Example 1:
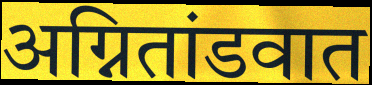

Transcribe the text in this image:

अग्नितांडवात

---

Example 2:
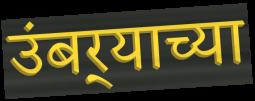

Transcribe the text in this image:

उंबर्याच्या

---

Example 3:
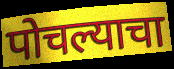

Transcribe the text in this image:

पोचल्याचा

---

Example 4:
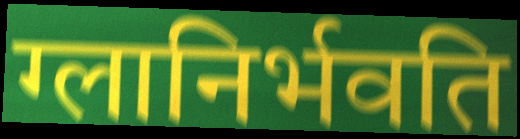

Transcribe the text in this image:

ग्लानिर्भवति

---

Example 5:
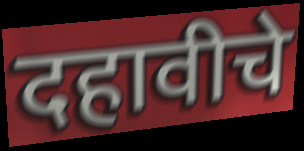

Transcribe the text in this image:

दहावीचे